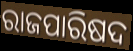
ରାଜପାରିଷଦ